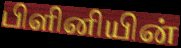
பிளினியின்